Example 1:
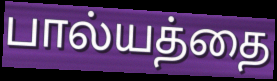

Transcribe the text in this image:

பால்யத்தை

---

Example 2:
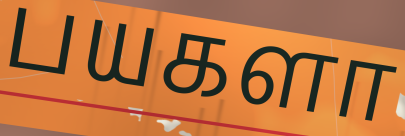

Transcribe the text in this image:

பயகளா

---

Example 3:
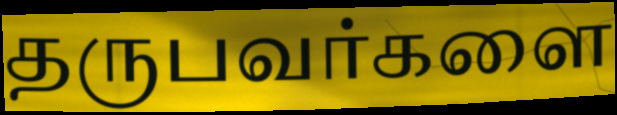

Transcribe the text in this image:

தருபவர்களை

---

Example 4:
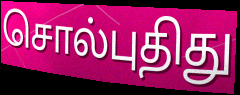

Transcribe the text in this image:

சொல்புதிது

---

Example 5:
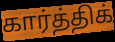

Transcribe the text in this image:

கார்த்திக்